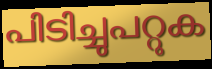
പിടിച്ചുപറ്റുക